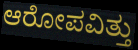
ಆರೋಪವಿತ್ತು